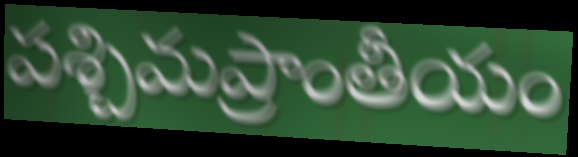
పశ్చిమప్రాంతీయం